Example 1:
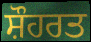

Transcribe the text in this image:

ਸ਼ੌਹਰਤ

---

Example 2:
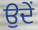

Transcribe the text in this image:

ਉਦੇਂ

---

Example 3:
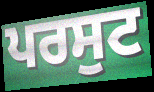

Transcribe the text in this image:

ਪਰਸੁਟ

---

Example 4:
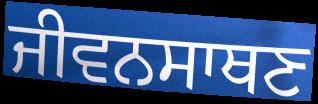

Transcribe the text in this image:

ਜੀਵਨਸਾਥਣ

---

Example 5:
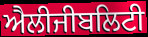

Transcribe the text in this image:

ਐਲੀਜੀਬਲਿਟੀ